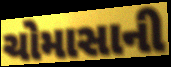
ચોમાસાની